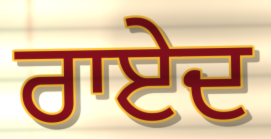
ਰਾਏਦ